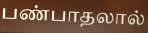
பண்பாதலால்